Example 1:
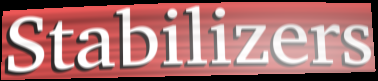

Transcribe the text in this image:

Stabilizers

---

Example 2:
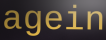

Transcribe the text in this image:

agein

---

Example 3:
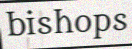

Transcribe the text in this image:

bishops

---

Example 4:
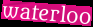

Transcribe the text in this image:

waterloo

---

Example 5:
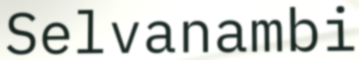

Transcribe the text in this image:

Selvanambi